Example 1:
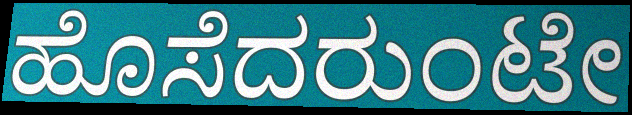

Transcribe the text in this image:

ಹೊಸೆದರುಂಟೇ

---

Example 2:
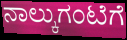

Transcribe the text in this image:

ನಾಲ್ಕುಗಂಟೆಗೆ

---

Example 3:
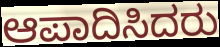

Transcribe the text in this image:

ಆಪಾದಿಸಿದರು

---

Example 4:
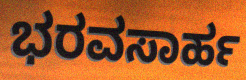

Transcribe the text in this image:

ಭರವಸಾರ್ಹ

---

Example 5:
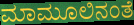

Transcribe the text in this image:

ಮಾಮೂಲಿನಂತೆ